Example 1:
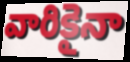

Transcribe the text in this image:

వారికైనా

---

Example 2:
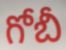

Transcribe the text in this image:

గోబీ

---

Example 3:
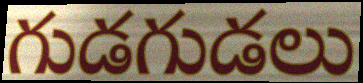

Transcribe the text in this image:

గుడగుడలు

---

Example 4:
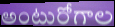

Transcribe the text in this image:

అంటురోగాల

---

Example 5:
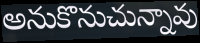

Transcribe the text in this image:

అనుకొనుచున్నావు